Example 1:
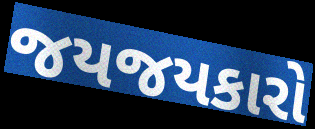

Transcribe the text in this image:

જયજયકારો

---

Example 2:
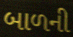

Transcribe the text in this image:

બાળની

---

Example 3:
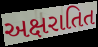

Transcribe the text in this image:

અક્ષરાતિત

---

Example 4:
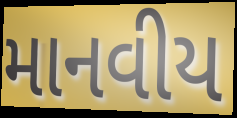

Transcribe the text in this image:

માનવીય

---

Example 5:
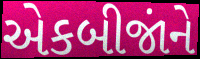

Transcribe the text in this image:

એકબીજાંને